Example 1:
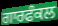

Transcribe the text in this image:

ਗਾਰਫੰਕਲ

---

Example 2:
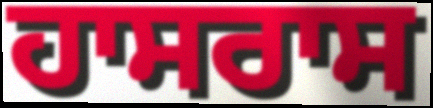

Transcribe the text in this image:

ਹਾਸਰਾਸ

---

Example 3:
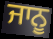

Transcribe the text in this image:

ਜਾਨੂ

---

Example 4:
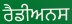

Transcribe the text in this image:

ਰੈਡੀਅਨਸ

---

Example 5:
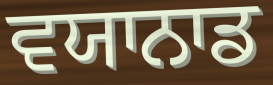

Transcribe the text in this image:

ਵਯਾਨਾਡ